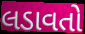
લડાવતો